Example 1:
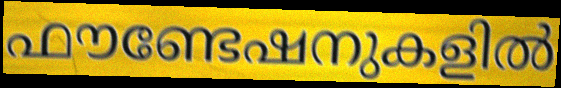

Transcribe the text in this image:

ഫൗണ്ടേഷനുകളിൽ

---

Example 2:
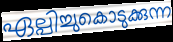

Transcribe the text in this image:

ഏല്പിച്ചുകൊടുക്കുന്ന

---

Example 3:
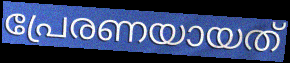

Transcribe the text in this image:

പ്രേരണയായത്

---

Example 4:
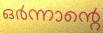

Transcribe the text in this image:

ഒർന്നാന്റെ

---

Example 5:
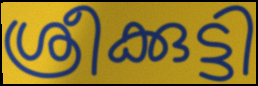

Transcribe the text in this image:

ശ്രീക്കുട്ടി